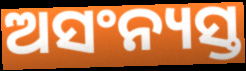
ଅସଂନ୍ୟସ୍ତ